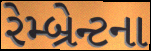
રેમ્બ્રેન્ટના